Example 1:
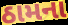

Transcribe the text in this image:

ઠામના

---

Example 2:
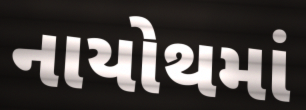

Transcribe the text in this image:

નાયોથમાં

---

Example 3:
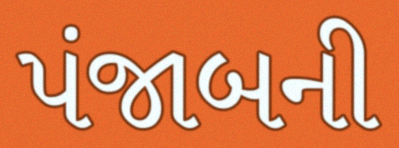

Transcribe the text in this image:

પંજાબની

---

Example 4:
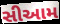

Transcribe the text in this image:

સીઆમ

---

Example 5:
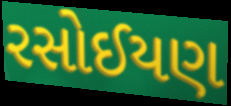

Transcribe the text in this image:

રસોઈયણ